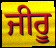
ਜੀਰੂ